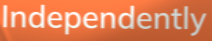
Independently